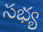
సభ్య